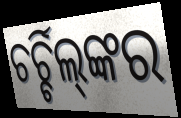
ଚର୍ଚ୍ଚିଲ୍‌ଙ୍କର